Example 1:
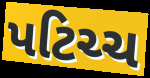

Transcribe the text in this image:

પટિચ્ચ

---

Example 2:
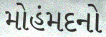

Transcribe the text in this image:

મોહંમદનો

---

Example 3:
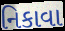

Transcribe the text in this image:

નિકાવા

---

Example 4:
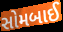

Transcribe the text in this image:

સોમબાઈ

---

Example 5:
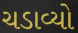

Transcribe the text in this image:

ચડાવ્યો